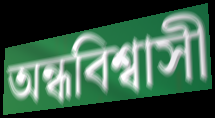
অন্ধবিশ্বাসী